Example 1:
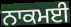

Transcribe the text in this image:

ਨਾਕਮਈ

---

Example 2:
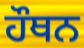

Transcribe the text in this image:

ਹੌਥਨ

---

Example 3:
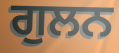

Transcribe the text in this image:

ਗੁਲਨ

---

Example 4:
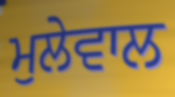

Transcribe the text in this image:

ਮੁਲੇਵਾਲ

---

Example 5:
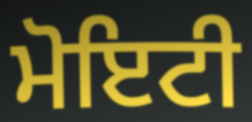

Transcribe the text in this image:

ਮੋਇਟੀ